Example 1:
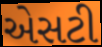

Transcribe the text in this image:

એસટી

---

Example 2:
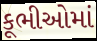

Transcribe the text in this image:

કૂભીઓમાં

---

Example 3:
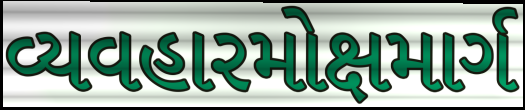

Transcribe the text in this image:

વ્યવહારમોક્ષમાર્ગ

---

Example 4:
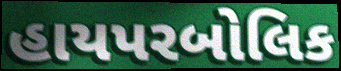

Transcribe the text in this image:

હાયપરબોલિક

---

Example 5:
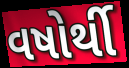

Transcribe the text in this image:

વષોર્થી